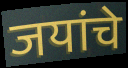
जयांचे